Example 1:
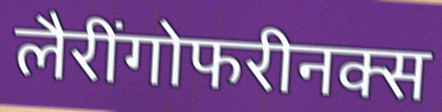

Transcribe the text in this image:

लैरींगोफरीनक्स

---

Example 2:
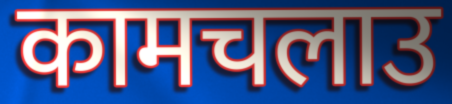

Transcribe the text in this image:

कामचलाउ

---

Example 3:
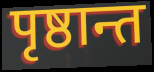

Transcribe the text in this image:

पृष्ठान्त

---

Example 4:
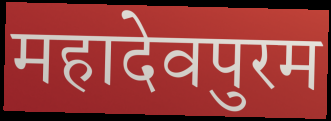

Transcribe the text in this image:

महादेवपुरम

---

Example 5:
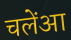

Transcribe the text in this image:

चलेंआ